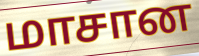
மாசான